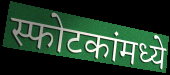
स्फोटकांमध्ये